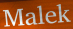
Malek